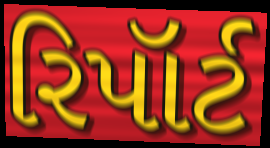
રિપૉર્ટ